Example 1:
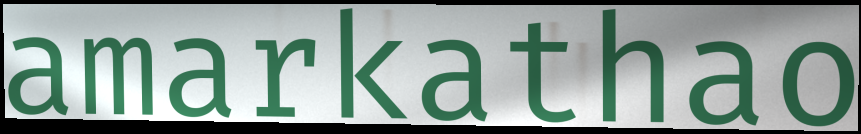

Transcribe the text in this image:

amarkathao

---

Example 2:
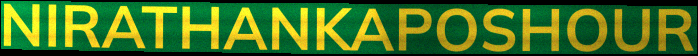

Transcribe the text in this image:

NIRATHANKAPOSHOUR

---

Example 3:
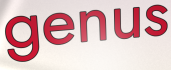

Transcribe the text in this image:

genus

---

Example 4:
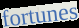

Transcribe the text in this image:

fortunes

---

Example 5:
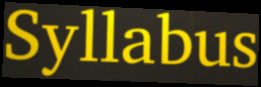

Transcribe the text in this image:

Syllabus